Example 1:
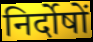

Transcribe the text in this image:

निर्दोषों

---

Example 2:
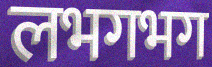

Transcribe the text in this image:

लभगभग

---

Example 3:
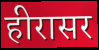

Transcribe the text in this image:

हीरासर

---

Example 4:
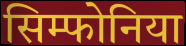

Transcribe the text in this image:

सिम्फोनिया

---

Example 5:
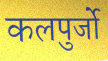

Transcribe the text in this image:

कलपुर्जो